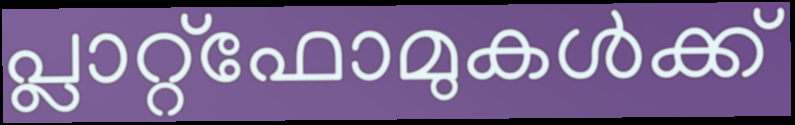
പ്ലാറ്റ്ഫോമുകൾക്ക്